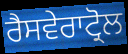
ਰੈਸਵੇਰਾਟ੍ਰੋਲ